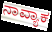
ನಾವ್ಯಾಕ